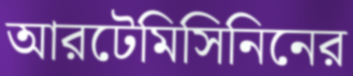
আরটেমিসিনিনের